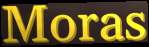
Moras